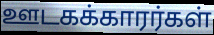
ஊடகக்காரர்கள்